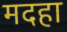
मदहा